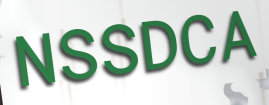
NSSDCA